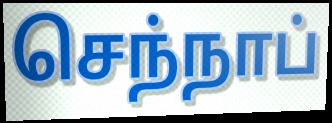
செந்நாப்